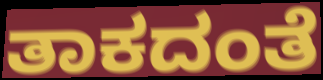
ತಾಕದಂತೆ